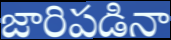
జారిపడినా